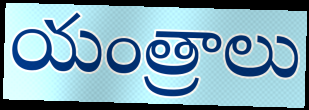
యంత్రాలు